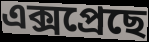
এক্সপ্ৰেছে